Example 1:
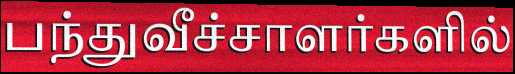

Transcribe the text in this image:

பந்துவீச்சாளர்களில்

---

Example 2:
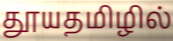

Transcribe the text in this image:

தூயதமிழில்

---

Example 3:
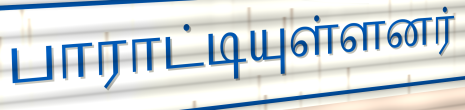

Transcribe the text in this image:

பாராட்டியுள்ளனர்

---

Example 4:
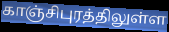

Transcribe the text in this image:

காஞ்சிபுரத்திலுள்ள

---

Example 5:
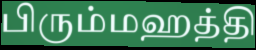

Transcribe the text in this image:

பிரும்மஹத்தி